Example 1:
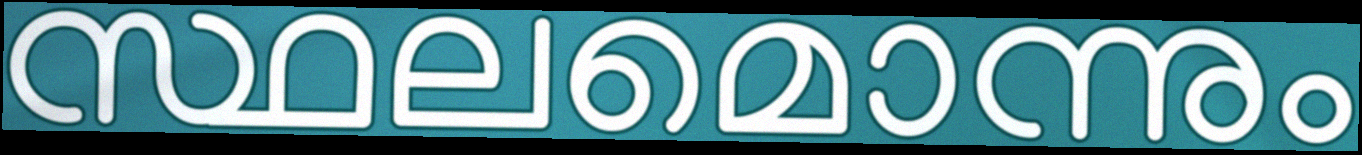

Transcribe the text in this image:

സ്ഥലമൊന്നും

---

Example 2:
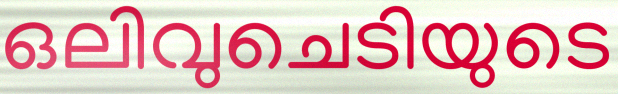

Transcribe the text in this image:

ഒലിവുചെടിയുടെ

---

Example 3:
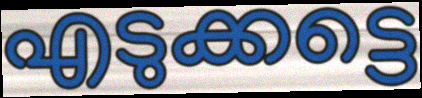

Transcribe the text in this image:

എടുക്കട്ടെ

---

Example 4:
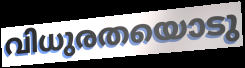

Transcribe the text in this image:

വിധുരതയൊടു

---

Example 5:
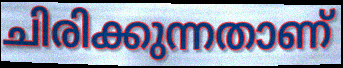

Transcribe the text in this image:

ചിരിക്കുന്നതാണ്